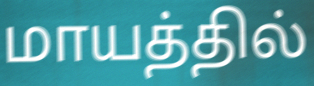
மாயத்தில்